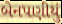
બેનપણીયું